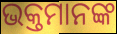
ଭକ୍ତମାନଙ୍କ